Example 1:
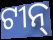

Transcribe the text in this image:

ଟୀନ୍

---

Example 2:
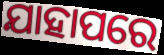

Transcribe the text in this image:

ଯାହାପରେ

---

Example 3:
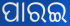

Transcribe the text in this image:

ପାରଇ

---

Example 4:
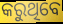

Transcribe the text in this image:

କରୁଥିବେ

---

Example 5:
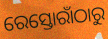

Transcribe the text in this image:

ରେସ୍ତୋରାଁଠାରୁ